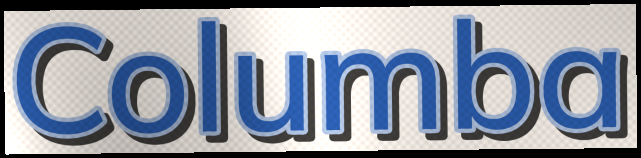
Columba